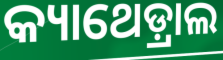
କ୍ୟାଥେଡ଼୍ରାଲ